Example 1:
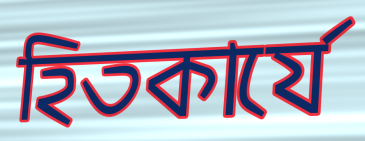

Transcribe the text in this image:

হিতকার্যে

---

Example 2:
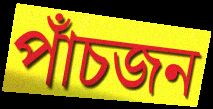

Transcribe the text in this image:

পাঁচজন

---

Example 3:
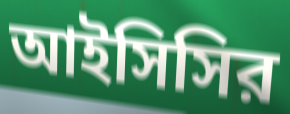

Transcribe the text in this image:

আইসিসির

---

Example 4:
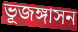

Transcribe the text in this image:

ভূজঙ্গাসন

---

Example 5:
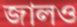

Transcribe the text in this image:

জালও